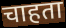
चाहता